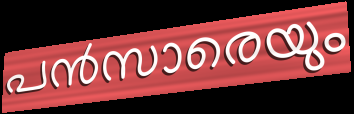
പൻസാരെയും